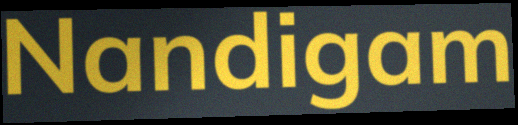
Nandigam